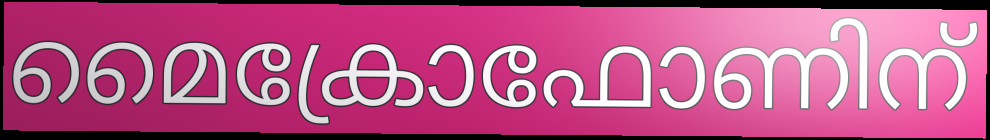
മൈക്രോഫോണിന്